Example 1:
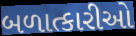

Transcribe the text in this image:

બળાત્કારીઓ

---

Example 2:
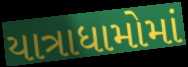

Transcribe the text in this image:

યાત્રાધામોમાં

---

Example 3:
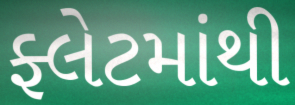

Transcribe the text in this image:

ફ્લેટમાંથી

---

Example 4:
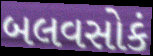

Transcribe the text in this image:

બલવસોકં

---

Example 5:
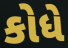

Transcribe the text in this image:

કોધે